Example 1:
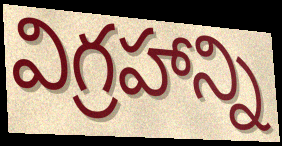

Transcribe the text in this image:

విగ్రహాన్ని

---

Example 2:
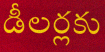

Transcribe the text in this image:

డీలర్లకు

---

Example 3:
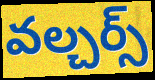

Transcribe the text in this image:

వల్చర్స్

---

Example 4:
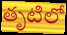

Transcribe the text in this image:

తృటిలో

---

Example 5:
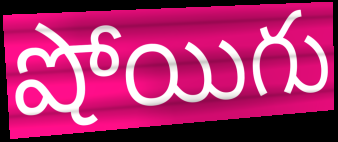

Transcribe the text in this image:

షోయిగు